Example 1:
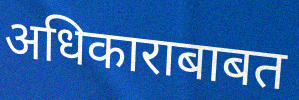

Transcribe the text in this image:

अधिकाराबाबत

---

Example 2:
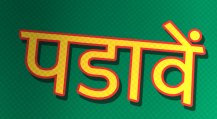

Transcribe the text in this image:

पडावें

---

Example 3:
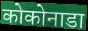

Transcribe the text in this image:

कोकोनाडा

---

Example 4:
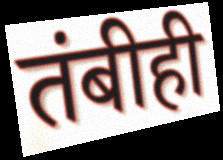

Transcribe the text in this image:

तंबीही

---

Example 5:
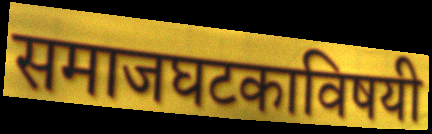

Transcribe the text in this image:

समाजघटकाविषयी